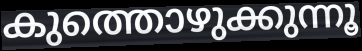
കുത്തൊഴുക്കുന്നൂ